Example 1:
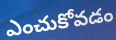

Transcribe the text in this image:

ఎంచుకోవడం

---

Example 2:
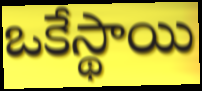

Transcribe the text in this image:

ఒకేస్థాయి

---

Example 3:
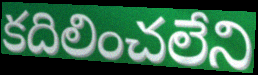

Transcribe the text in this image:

కదిలించలేని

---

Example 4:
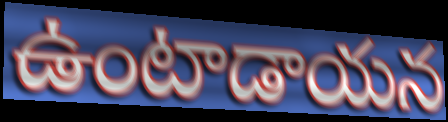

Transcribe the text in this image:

ఉంటాడాయన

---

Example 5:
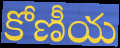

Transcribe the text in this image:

కోణీయ